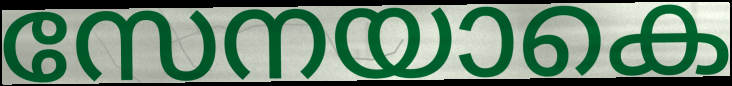
സേനയാകെ